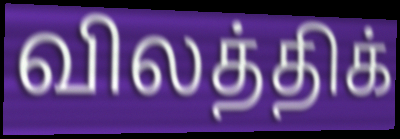
விலத்திக்